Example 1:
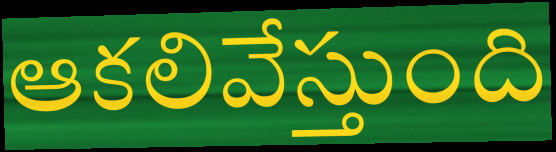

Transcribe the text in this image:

ఆకలివేస్తుంది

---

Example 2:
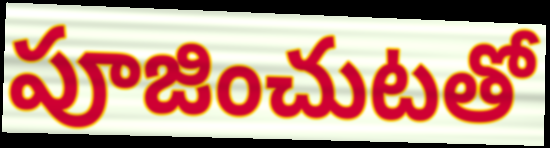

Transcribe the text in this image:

పూజించుటతో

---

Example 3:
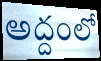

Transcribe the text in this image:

అద్దంలో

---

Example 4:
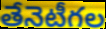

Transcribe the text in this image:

తేనెటీగల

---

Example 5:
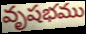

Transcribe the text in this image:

వృషభము